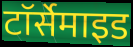
टॉर्सेमाइड